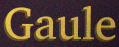
Gaule